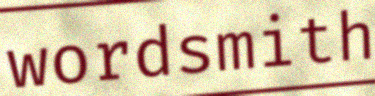
wordsmith